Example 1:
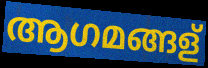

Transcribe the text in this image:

ആഗമങ്ങള്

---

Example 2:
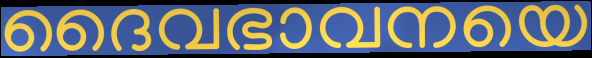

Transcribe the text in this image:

ദൈവഭാവനയെ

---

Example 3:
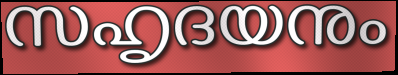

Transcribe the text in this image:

സഹൃദയനും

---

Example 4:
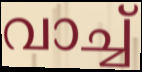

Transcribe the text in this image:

വാച്ച്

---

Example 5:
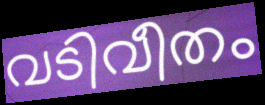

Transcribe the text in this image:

വടിവീതം